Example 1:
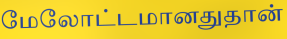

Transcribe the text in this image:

மேலோட்டமானதுதான்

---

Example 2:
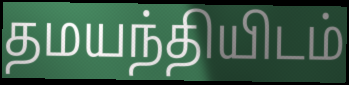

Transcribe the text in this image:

தமயந்தியிடம்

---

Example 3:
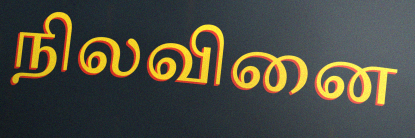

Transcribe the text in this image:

நிலவினை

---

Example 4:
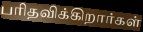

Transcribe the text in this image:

பரிதவிக்கிறார்கள்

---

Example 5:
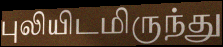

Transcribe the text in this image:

புலியிடமிருந்து